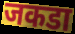
जकडा